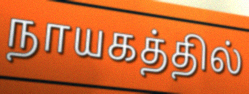
நாயகத்தில்